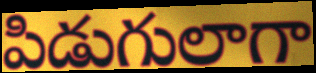
పిడుగులాగా